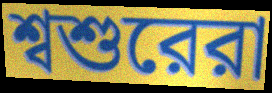
শ্বশুরেরা